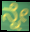
ನ್ನೇ